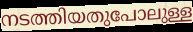
നടത്തിയതുപോലുള്ള